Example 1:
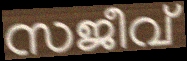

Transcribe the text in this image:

സജീവ്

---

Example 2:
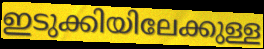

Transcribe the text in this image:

ഇടുക്കിയിലേക്കുള്ള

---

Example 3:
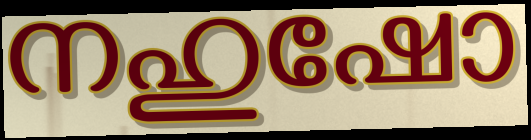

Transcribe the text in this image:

നഹുഷോ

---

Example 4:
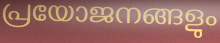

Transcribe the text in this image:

പ്രയോജനങ്ങളും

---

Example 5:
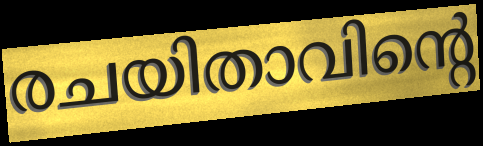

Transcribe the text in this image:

രചയിതാവിന്റെ